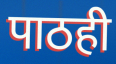
पाठही